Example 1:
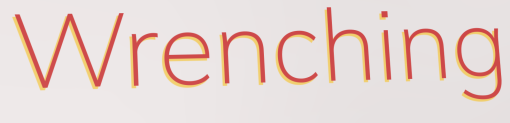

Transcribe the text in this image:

Wrenching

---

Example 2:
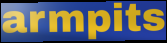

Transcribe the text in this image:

armpits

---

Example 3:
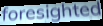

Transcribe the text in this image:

foresighted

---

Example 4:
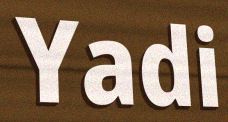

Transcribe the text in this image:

Yadi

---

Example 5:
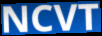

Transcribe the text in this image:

NCVT